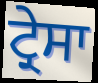
ਟ੍ਰੇਸਾ